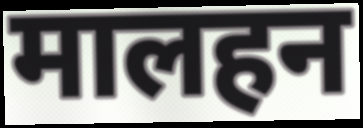
मालहन